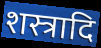
शस्त्रादि